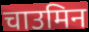
चाउमिन